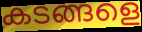
കടങ്ങളെ